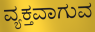
ವ್ಯಕ್ತವಾಗುವ